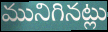
మునిగినట్లు